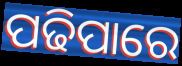
ପଢିପାରେ